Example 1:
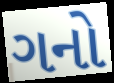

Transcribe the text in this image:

ગનો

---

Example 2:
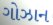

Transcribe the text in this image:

ગોઝાન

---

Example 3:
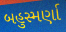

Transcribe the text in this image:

બહુસ્મર્ણા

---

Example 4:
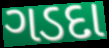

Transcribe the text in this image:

ગડદા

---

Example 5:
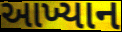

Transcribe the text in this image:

આખ્યાન